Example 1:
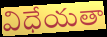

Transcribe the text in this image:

విధేయతా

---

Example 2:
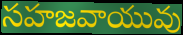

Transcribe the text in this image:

సహజవాయువు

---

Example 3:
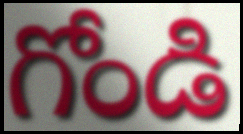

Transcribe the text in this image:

గోండి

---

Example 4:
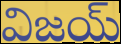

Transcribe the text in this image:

విజయ్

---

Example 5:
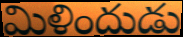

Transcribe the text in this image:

మిళిందుడు